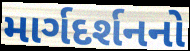
માર્ગદર્શનનો